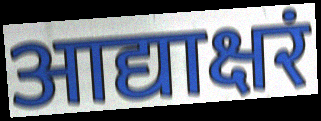
आद्याक्षरं